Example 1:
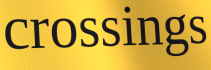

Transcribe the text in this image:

crossings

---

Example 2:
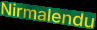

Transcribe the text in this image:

Nirmalendu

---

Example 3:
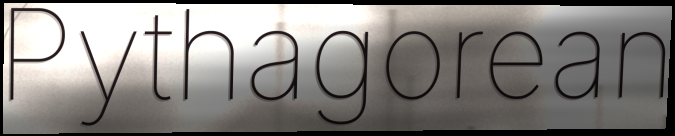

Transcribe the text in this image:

Pythagorean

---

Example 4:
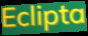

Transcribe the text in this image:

Eclipta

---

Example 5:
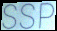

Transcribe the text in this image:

SSP